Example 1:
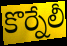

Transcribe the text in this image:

కొర్నేలీ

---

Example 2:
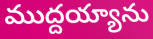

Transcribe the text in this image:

ముద్దయ్యాను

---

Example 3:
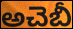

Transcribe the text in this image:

అచెబీ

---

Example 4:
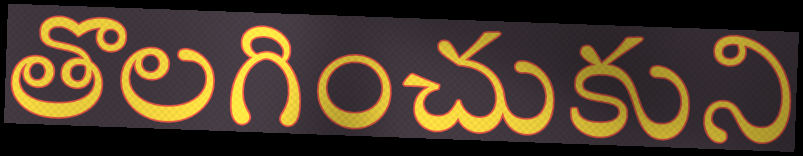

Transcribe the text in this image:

తొలగించుకుని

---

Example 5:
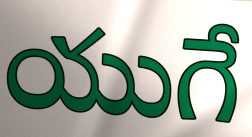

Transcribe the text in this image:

యుగే